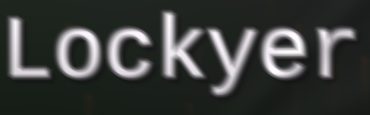
Lockyer